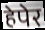
हेपेर